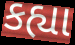
કહ્યા